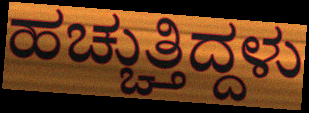
ಹಚ್ಚುತ್ತಿದ್ದಳು